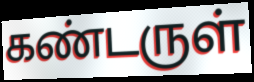
கண்டருள்